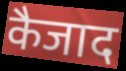
कैजाद